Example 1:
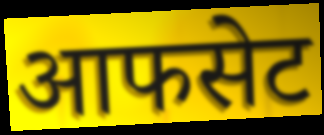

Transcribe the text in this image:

आफसेट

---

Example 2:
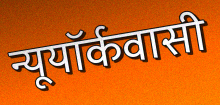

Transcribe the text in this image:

न्यूयॉर्कवासी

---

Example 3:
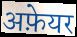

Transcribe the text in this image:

अफ़ेयर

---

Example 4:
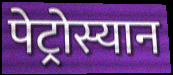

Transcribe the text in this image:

पेट्रोस्यान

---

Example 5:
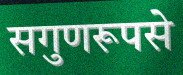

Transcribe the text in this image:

सगुणरूपसे